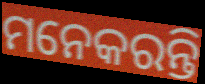
ମନେକରନ୍ତି